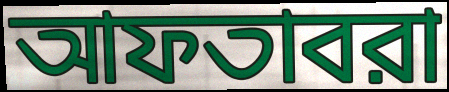
আফতাবরা